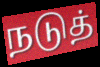
நடுத்